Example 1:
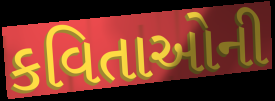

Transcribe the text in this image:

કવિતાઓની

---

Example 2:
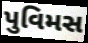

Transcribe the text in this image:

પુવિમસ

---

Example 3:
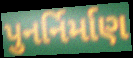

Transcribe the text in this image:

પુનર્નિર્માણ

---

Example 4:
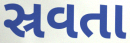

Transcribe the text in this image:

સ્રવતા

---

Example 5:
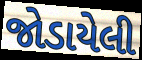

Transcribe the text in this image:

જોડાયેલી